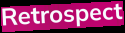
Retrospect